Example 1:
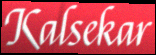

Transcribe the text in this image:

Kalsekar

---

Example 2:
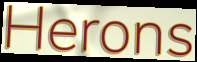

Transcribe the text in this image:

Herons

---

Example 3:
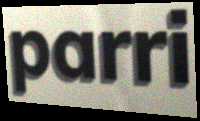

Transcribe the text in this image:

parri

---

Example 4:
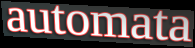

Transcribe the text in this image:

automata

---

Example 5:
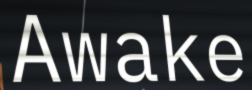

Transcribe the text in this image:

Awake